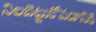
నిలబెట్టుకోవడానికి